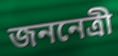
জননেত্রী